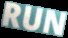
RUN